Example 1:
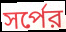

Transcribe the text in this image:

সর্পের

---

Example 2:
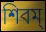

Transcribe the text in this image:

শিবম্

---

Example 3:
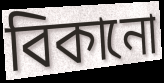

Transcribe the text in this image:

বিকানো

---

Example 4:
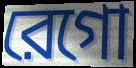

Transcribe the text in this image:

রেগো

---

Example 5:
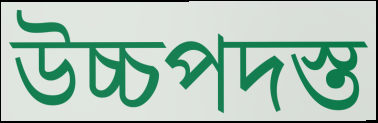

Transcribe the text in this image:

উচ্চপদস্ত